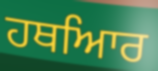
ਹਥਆਿਰ